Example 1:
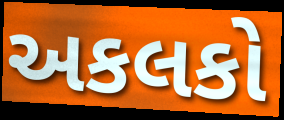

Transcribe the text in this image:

અકલકો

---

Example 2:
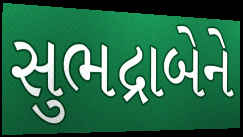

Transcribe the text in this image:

સુભદ્રાબેને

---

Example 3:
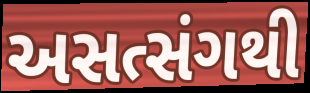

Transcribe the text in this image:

અસત્સંગથી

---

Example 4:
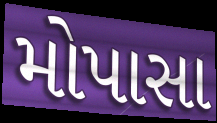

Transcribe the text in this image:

મોપાસા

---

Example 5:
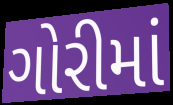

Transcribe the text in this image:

ગોરીમાં